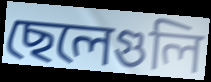
ছেলেগুলি